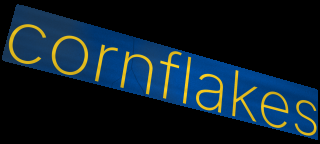
cornflakes